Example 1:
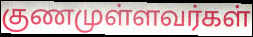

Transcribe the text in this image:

குணமுள்ளவர்கள்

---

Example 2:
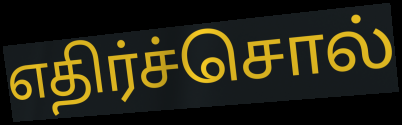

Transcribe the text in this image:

எதிர்ச்சொல்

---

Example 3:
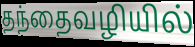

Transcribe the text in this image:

தந்தைவழியில்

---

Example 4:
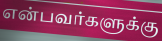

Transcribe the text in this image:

என்பவர்களுக்கு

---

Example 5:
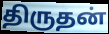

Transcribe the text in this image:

திருதன்